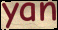
yan